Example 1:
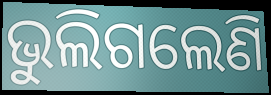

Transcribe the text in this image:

ଭୁଲିଗଲେଣି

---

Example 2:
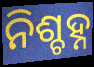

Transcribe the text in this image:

ନିଶ୍ଚହ୍ନ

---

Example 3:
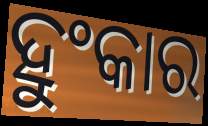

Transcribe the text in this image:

ହୁଂକାର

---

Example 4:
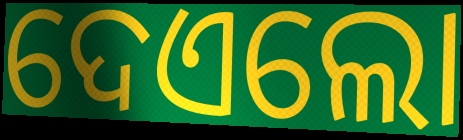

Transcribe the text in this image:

ଦେଏଲୋ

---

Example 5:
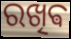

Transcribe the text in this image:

ରଖିଵ